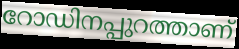
റോഡിനപ്പുറത്താണ്